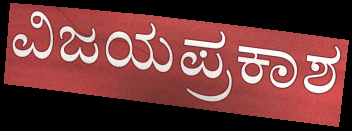
ವಿಜಯಪ್ರಕಾಶ